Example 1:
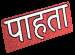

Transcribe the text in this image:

पाहता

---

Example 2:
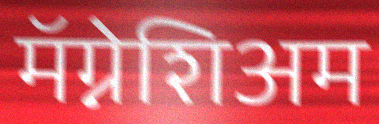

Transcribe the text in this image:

मॅग्नेशिअम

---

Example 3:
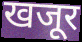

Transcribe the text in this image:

खजूर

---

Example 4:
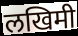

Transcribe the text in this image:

लखिमी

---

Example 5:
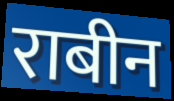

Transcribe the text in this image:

राबीन